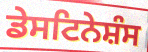
ਡੇਸਟਿਨੇਸ਼ੰਸ